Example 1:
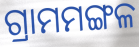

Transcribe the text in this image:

ଗ୍ରାମମଙ୍ଗଳ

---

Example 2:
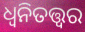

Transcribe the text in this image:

ଧ୍ଵନିତତ୍ତ୍ଵର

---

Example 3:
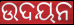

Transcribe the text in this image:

ଉଦୟନ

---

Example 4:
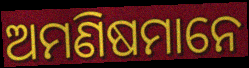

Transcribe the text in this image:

ଅମଣିଷମାନେ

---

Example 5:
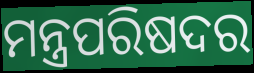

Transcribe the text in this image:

ମନ୍ତ୍ରପରିଷଦର